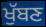
ਖੁੱਬਣ